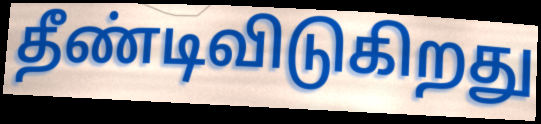
தீண்டிவிடுகிறது